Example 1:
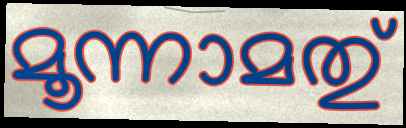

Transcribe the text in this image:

മൂന്നാമതു്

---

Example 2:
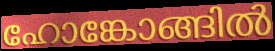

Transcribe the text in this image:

ഹോങ്കോങ്ങിൽ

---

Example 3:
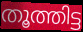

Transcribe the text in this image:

തൂത്തിട്ട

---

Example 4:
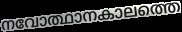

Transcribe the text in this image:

നവോത്ഥാനകാലത്തെ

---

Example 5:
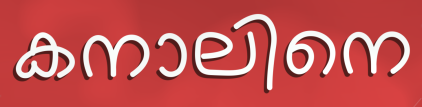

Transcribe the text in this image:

കനാലിനെ